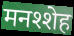
मनश्शेह